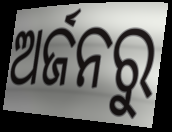
ଅର୍ଜନରୁ